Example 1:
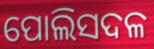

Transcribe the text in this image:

ପୋଲିସଦଳ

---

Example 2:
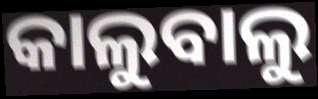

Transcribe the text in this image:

କାଲୁବାଲୁ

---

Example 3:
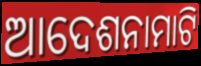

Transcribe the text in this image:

ଆଦେଶନାମାଟି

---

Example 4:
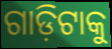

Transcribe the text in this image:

ଗାଡ଼ିଟାକୁ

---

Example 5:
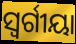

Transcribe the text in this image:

ସ୍ବର୍ଗୀୟା